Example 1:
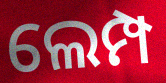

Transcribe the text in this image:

ଲେମ୍ପ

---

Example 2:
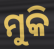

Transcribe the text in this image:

ମୁକି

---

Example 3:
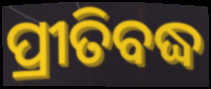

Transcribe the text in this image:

ପ୍ରୀତିବଦ୍ଧ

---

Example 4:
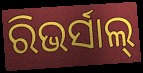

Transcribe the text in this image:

ରିଭର୍ସାଲ୍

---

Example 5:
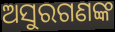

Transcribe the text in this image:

ଅସୁରଗଣଙ୍କ